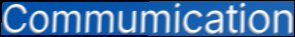
Commumication